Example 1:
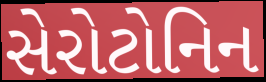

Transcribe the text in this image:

સેરોટોનિન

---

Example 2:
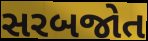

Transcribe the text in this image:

સરબજોત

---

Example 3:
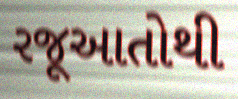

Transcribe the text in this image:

રજૂઆતોથી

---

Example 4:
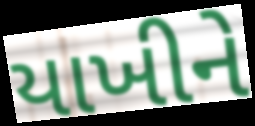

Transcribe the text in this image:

યાખીને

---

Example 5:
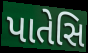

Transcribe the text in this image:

પાતેસિ